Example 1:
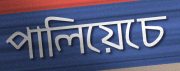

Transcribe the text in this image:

পালিয়েচে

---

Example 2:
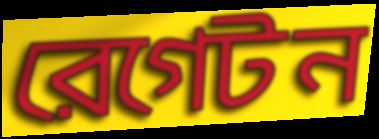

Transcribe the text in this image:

রেগেটন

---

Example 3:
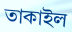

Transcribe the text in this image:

তাকাইল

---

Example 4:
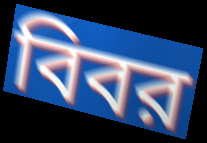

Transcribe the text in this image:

বিবর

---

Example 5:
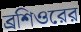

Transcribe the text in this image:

ব্রশিওরের